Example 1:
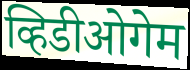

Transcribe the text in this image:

व्हिडीओगेम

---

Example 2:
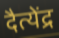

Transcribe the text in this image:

दैत्येंद्र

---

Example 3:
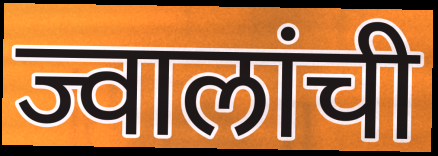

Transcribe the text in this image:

ज्वालांची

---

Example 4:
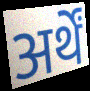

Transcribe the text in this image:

अर्थें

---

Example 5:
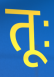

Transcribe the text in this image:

तूः